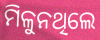
ମିଳୁନଥିଲେ